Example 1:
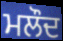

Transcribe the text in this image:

ਮਲੌਦ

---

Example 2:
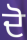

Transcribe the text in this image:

ਦੋ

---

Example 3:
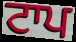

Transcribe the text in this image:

ਟਾਪ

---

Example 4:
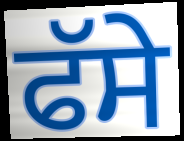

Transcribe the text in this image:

ਫੱਸੇ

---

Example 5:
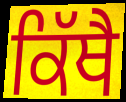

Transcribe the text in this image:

ਕਿੱਥੈ